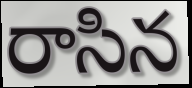
రాసిన